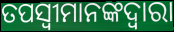
ତପସ୍ୱୀମାନଙ୍କଦ୍ୱାରା